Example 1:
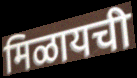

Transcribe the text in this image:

मिळायची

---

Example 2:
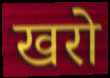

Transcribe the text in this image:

खरो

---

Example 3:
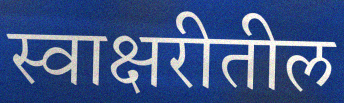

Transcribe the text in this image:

स्वाक्षरीतील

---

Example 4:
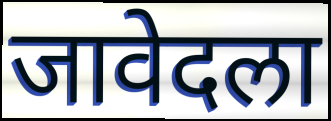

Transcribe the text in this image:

जावेदला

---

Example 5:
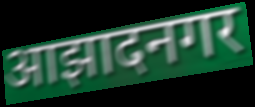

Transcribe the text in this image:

आझादनगर